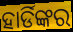
ହାର୍ଡିଙ୍କର